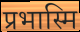
प्रभास्मि